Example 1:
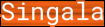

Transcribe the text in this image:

Singala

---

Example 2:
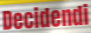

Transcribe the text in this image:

Decidendi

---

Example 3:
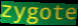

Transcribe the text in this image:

zygote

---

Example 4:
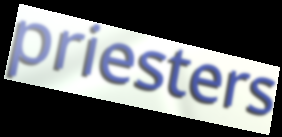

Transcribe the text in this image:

priesters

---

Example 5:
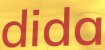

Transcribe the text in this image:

dida